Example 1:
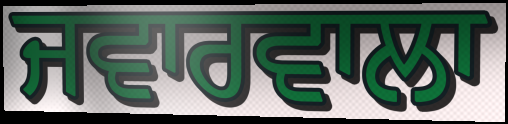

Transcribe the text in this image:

ਜਵਾਰਵਾਲਾ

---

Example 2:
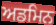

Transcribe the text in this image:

ਅਡਮਿਨ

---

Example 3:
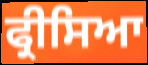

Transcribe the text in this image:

ਫ੍ਰੀਸਿਆ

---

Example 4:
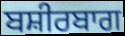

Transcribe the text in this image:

ਬਸ਼ੀਰਬਾਗ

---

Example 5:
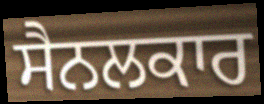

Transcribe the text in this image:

ਸੈਨਲਕਾਰ